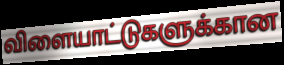
விளையாட்டுகளுக்கான